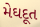
મેઘદૂત